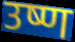
उष्ण